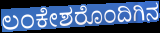
ಲಂಕೇಶರೊಂದಿಗಿನ